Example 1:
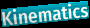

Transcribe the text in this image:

Kinematics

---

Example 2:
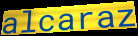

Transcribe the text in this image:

alcaraz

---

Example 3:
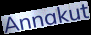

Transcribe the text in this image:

Annakut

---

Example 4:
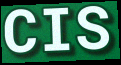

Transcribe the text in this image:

CIS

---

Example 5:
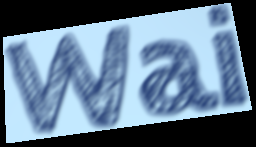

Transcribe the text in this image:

Wai